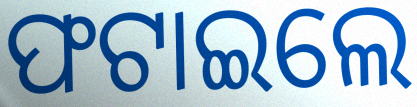
ଫଟାଇଲେ